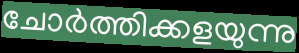
ചോർത്തിക്കളയുന്നു